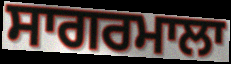
ਸਾਗਰਮਾਲਾ